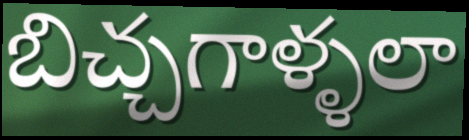
బిచ్చగాళ్ళలా